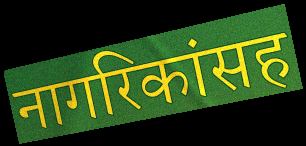
नागरिकांसह